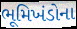
ભૂમિખંડોના